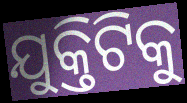
ଯୁକ୍ତିଟିକୁ